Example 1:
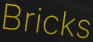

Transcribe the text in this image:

Bricks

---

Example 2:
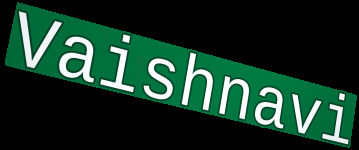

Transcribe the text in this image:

Vaishnavi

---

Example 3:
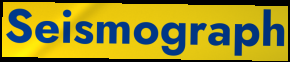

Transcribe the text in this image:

Seismograph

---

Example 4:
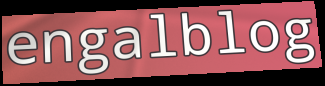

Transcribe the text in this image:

engalblog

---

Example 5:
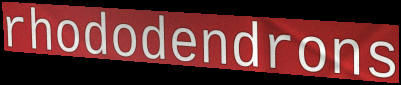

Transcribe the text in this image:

rhododendrons